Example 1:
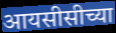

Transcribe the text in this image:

आयसीसीच्या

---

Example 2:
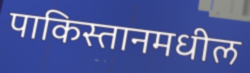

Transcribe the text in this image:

पाकिस्तानमधील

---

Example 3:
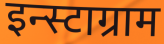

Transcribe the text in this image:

इन्स्टाग्राम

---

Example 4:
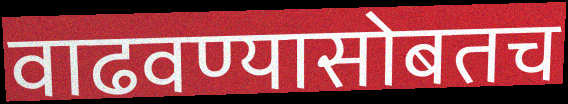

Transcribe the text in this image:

वाढवण्यासोबतच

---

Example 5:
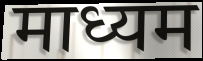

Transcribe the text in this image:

माध्यम